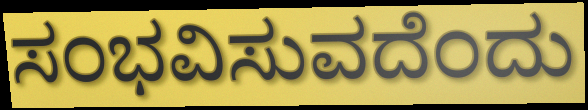
ಸಂಭವಿಸುವದೆಂದು